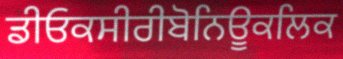
ਡੀਓਕਸੀਰੀਬੋਨਿਊਕਲਿਕ